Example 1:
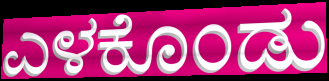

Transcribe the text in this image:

ಎಳಕೊಂಡು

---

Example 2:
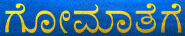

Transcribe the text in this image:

ಗೋಮಾತೆಗೆ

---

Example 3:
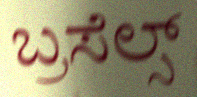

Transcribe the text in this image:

ಬ್ರಸೆಲ್ಸ್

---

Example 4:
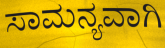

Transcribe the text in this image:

ಸಾಮನ್ಯವಾಗಿ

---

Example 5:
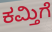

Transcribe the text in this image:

ಕಮ್ತಿಗೆ